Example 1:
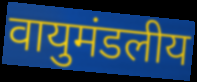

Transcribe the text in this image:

वायुमंडलीय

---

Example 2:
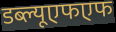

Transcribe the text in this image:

डब्ल्यूएफएफ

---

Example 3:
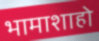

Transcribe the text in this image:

भामाशाहो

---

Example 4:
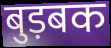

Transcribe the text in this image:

बुड़बक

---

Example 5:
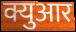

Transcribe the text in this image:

क्युआर